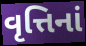
વૃત્તિનાં